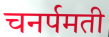
चनर्पमती